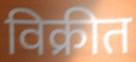
विक्रीत